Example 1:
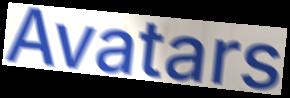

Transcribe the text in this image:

Avatars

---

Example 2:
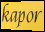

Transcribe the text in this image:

kapor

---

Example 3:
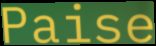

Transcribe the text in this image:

Paise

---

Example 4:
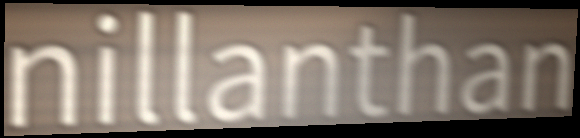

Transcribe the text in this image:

nillanthan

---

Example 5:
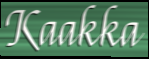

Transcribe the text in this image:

Kaakka